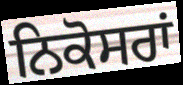
ਨਿਕੋਸਰਾਂ